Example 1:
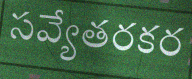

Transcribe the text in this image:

సవ్యేతరకర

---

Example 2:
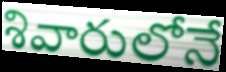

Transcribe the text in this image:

శివారులోనే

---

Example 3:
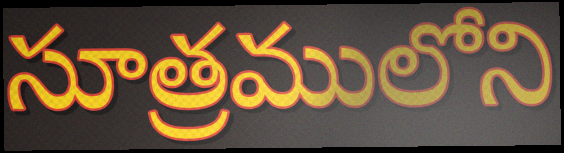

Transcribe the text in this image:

సూత్రములోని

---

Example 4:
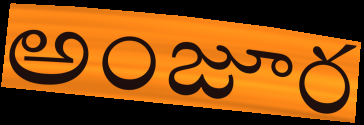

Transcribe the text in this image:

అంజూర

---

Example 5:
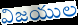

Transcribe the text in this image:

విజయుల